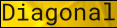
Diagonal